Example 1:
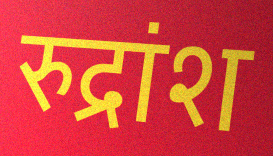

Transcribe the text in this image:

रुद्रांश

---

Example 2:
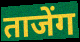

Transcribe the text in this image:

ताजेंग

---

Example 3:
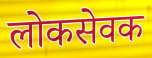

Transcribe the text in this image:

लोकसेवक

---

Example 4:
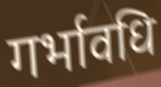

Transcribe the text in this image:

गर्भावधि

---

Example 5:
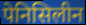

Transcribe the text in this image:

पेनिसिलीन